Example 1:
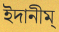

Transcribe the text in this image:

ইদানীম্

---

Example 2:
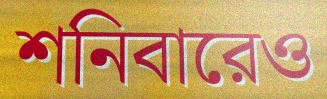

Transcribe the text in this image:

শনিবারেও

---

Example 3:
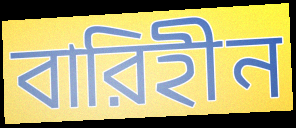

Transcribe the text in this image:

বারিহীন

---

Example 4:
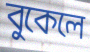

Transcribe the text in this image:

বুকেলে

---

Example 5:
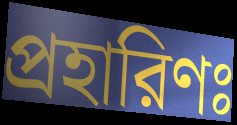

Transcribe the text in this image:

প্রহারিণঃ